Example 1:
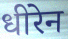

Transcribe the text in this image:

धीरेन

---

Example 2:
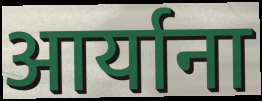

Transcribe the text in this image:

आर्याना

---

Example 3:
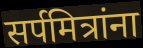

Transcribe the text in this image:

सर्पमित्रांना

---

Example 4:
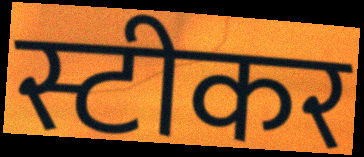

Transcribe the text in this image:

स्टीकर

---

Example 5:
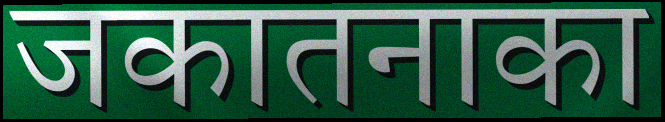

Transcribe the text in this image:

जकातनाका